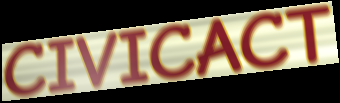
CIVICACT